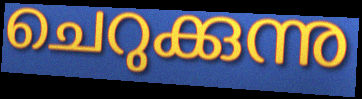
ചെറുക്കുന്നു